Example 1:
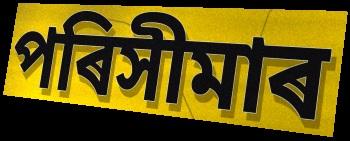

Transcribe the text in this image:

পৰিসীমাৰ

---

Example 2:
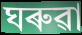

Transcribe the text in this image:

ঘৰুৱা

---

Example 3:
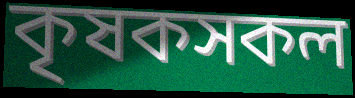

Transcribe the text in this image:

কৃষকসকল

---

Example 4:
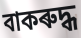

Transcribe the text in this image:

বাকৰুদ্ধ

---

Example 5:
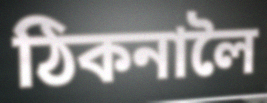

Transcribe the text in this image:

ঠিকনালৈ